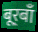
बूर्‌बाँ